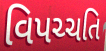
વિપચ્ચતિ